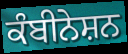
ਕੰਬੀਨੇਸ਼ਨ